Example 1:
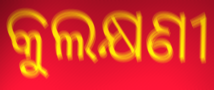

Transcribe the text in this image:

କୁଲକ୍ଷଣୀ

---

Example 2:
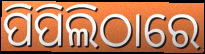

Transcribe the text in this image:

ପିପିଲିଠାରେ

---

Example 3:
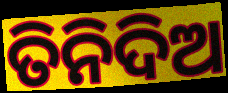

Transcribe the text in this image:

ତିନିଦିଅ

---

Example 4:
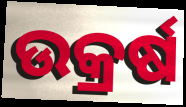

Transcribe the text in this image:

ଉକ୍ରର୍ଷ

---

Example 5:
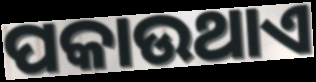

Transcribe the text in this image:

ପକାଉଥାଏ